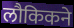
लौकिकने